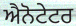
ਐਨੋਟੇਟਰ